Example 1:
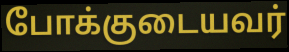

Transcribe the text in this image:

போக்குடையவர்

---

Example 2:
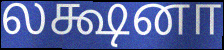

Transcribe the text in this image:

லக்ஷனா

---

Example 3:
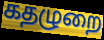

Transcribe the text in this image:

கதழுறை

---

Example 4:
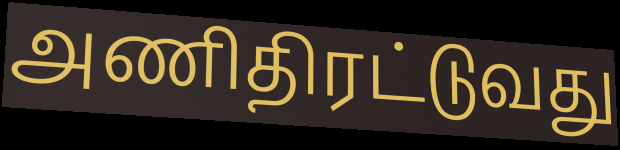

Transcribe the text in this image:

அணிதிரட்டுவது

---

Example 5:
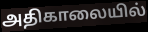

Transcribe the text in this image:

அதிகாலையில்